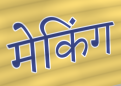
मेकिंग